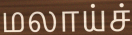
மலாய்ச்